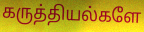
கருத்தியல்களே